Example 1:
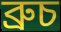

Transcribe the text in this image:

ব্ৰুচ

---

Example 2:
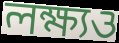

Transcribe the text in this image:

লক্ষ্যও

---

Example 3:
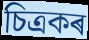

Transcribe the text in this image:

চিত্ৰকৰ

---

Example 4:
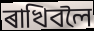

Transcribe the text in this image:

ৰাখিবলৈ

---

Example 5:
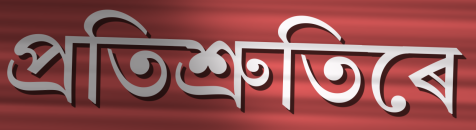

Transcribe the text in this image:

প্ৰতিশ্ৰুতিৰে